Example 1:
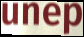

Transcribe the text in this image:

unep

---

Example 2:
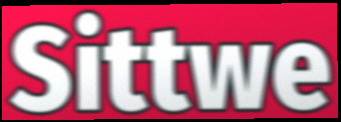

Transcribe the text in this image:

Sittwe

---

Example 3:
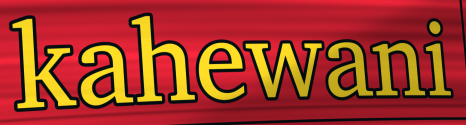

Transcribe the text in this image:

kahewani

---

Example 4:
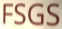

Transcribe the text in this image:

FSGS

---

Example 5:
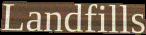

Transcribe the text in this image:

Landfills